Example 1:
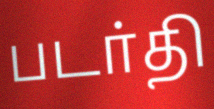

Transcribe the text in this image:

படர்தி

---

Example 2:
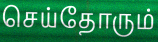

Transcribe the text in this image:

செய்தோரும்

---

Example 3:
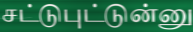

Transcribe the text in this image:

சட்டுபுட்டுன்னு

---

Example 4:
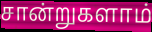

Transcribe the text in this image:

சான்றுகளாம்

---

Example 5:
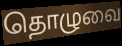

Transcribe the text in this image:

தொழுவை